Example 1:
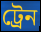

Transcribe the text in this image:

ট্রেন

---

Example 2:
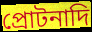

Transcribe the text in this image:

প্রোটনাদি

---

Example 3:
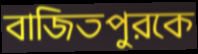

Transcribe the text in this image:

বাজিতপুরকে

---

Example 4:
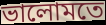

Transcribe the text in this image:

ভালোমতে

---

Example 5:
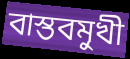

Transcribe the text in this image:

বাস্তবমুখী